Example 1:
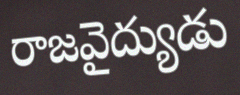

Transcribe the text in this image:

రాజవైద్యుడు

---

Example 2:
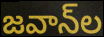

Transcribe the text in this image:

జవాన్‌ల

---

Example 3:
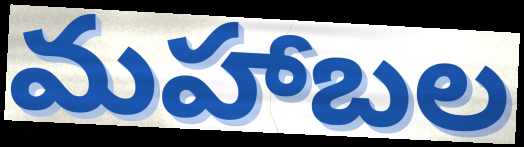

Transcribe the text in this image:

మహాబల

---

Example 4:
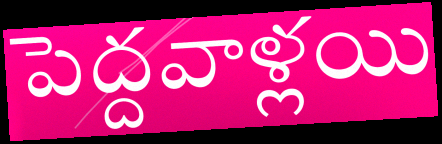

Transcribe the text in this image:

పెద్దవాళ్లయి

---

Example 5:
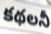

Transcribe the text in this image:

కథలనీ